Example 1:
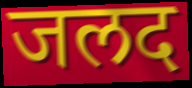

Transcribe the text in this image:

जलद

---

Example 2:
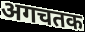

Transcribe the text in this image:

अगचतक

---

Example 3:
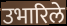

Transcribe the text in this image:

उभारिले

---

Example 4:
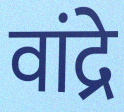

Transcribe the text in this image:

वांद्रे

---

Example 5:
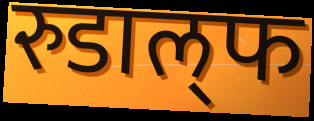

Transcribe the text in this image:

रुडाल्फ